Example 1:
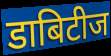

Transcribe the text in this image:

डाबिटीज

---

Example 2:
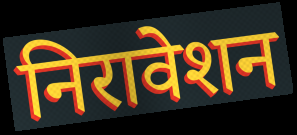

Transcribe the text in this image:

निरावेशन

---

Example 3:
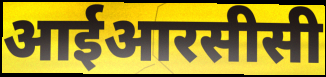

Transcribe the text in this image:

आईआरसीसी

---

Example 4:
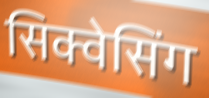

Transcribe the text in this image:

सिक्वेसिंग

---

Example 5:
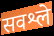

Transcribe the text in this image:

सवश्ले